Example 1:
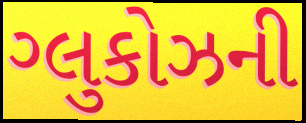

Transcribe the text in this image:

ગ્લુકોઝની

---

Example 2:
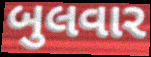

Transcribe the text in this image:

બુલવાર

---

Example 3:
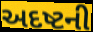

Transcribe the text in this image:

અદષ્ટની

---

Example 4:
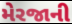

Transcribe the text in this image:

મેરજાની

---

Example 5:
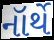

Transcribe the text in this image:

નૉર્થે